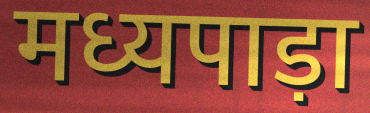
मध्यपाड़ा